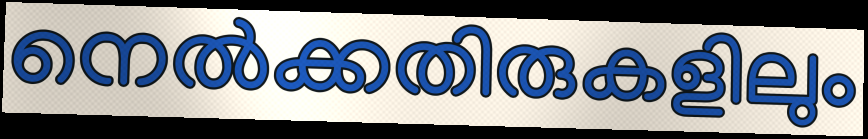
നെൽക്കതിരുകളിലും